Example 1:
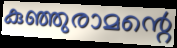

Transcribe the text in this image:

കുഞ്ഞുരാമന്റെ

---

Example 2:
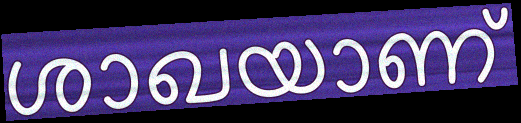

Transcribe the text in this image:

ശാഖയാണ്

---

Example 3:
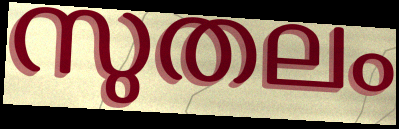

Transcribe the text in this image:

സുതലം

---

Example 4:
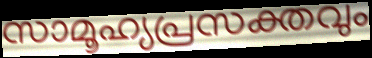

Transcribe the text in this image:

സാമൂഹ്യപ്രസക്തവും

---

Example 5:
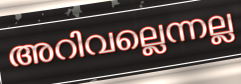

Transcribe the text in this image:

അറിവല്ലെന്നല്ല